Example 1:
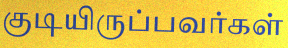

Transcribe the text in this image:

குடியிருப்பவர்கள்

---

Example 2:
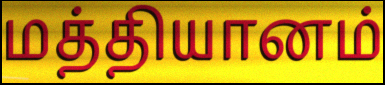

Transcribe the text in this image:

மத்தியானம்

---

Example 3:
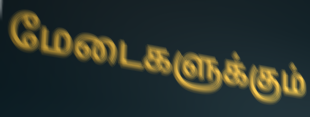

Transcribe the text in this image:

மேடைகளுக்கும்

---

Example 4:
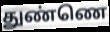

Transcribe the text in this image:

துண்ணெ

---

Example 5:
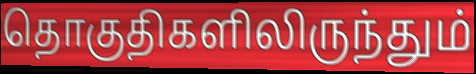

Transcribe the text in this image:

தொகுதிகளிலிருந்தும்